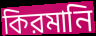
কিরমানি